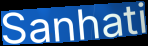
Sanhati